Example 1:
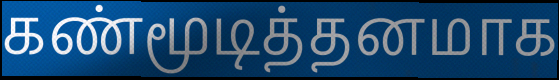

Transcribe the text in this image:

கண்மூடித்தனமாக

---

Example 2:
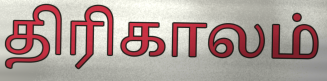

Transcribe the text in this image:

திரிகாலம்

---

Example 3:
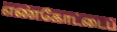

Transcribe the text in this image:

எண்கோட்டைப்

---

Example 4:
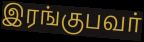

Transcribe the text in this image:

இரங்குபவர்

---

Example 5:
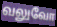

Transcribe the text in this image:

வலுவோ